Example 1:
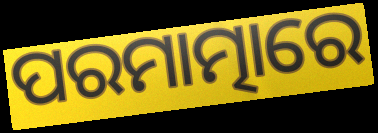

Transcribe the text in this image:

ପରମାତ୍ମାରେ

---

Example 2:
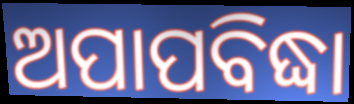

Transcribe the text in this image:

ଅପାପବିଦ୍ଧା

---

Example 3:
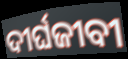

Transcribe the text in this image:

ଦୀର୍ଘଜୀବୀ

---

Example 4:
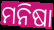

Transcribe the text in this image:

ମନିଷା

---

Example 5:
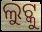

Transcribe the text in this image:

ଲୁଟ୍କୁ